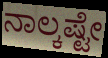
ನಾಲ್ಕಷ್ಟೇ